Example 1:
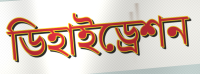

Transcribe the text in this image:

ডিহাইড্রেশন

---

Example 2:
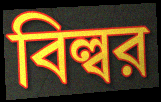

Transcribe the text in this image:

বিল্বর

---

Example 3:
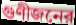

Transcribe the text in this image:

গুণীজনের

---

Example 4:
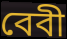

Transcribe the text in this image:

বেবী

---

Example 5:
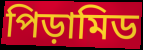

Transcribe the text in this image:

পিড়ামিড